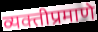
व्यक्तीप्रमाणे